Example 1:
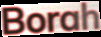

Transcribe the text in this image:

Borah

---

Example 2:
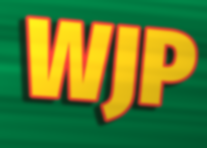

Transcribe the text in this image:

WJP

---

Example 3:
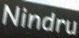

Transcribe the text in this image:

Nindru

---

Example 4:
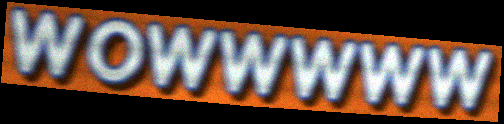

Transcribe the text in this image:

wowwwww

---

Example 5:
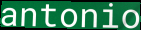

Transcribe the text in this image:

antonio